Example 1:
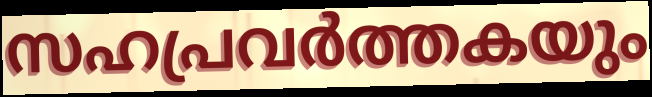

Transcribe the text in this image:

സഹപ്രവർത്തകയും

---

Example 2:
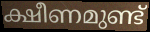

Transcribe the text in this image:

ക്ഷീണമുണ്ട്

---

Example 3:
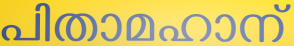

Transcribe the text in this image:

പിതാമഹാന്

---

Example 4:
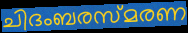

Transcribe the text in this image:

ചിദംബരസ്മരണ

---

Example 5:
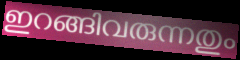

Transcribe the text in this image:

ഇറങ്ങിവരുന്നതും